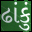
ઢાંકું